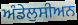
ਅੰਡੇਲੁਸੀਅਨ